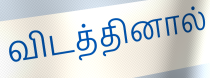
விடத்தினால்